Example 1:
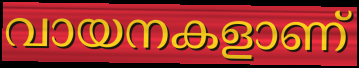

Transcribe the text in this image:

വായനകളാണ്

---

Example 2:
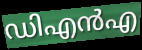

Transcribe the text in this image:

ഡിഎൻഎ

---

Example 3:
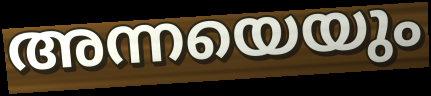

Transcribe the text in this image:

അന്നയെയും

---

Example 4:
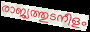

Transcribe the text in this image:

രാജ്യത്തുടനീളം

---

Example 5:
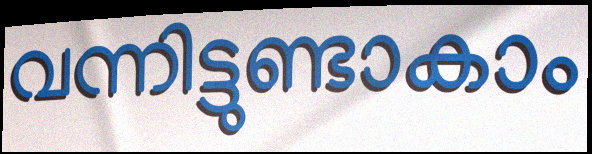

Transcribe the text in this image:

വന്നിട്ടുണ്ടാകാം